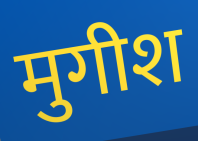
मुगीश